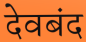
देवबंद